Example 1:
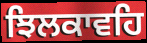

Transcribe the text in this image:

ਝਿਲਕਾਵਹਿ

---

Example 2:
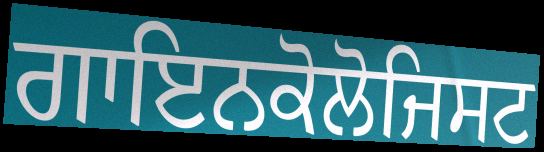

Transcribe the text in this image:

ਗਾਇਨਕੋਲੋਜਿਸਟ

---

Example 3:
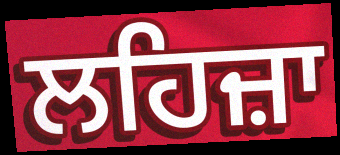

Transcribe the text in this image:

ਲਹਿਜ਼ਾ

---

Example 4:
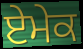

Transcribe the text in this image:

ਏਮੇਕ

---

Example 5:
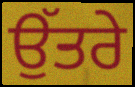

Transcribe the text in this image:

ਉੱਤਰੇ